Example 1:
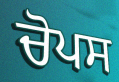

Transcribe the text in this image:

ਚੋਪਸ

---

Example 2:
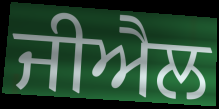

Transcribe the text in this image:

ਜੀਐਲ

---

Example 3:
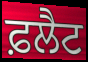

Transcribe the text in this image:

ਫ਼ਲੈਟ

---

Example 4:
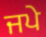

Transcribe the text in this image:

ਜਪੇ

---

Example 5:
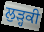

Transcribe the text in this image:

ਲੁੜ੍ਹਕੀ